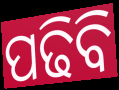
ପଢିବି